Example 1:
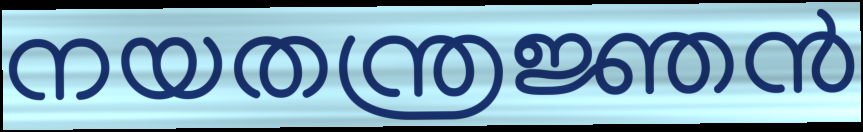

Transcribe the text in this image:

നയതന്ത്രജ്ഞൻ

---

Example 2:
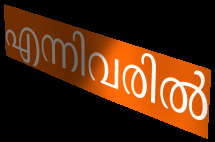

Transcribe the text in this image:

എന്നിവരിൽ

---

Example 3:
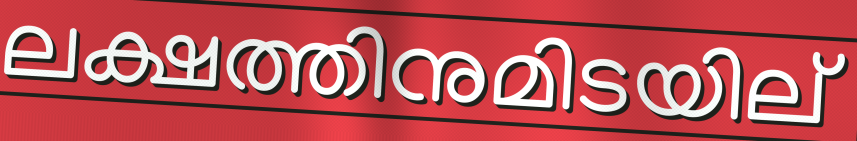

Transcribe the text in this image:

ലക്ഷത്തിനുമിടയില്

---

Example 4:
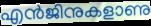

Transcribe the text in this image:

എൻജിനുകളാണു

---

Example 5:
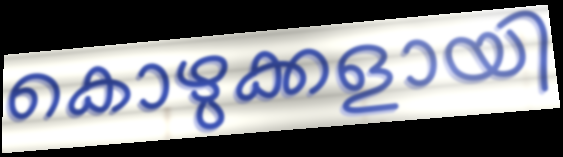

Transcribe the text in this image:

കൊഴുക്കളായി